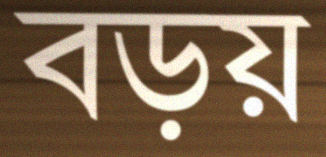
বড়য়